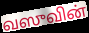
வஸுவின்